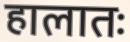
हालातः